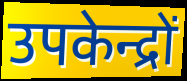
उपकेन्द्रों